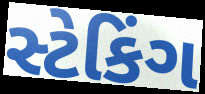
સ્ટેકિંગ